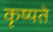
कृष्यते